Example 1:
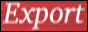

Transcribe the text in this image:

Export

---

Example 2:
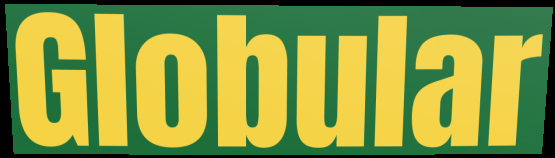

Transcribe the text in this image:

Globular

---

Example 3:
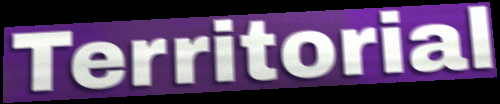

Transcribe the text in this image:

Territorial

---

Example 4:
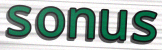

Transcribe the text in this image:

sonus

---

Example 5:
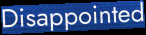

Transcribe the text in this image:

Disappointed